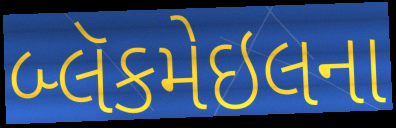
બ્લૅકમેઇલના